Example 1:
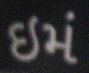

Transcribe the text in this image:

ઇમં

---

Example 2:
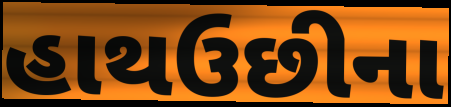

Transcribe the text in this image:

હાથઉછીના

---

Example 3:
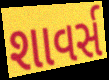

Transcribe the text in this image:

શાવર્સ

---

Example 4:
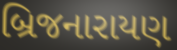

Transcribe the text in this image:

બ્રિજનારાયણ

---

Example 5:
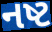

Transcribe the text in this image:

નષ્ટ